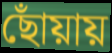
ছোঁয়ায়